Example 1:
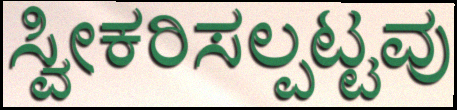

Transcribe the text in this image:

ಸ್ವೀಕರಿಸಲ್ಪಟ್ಟವು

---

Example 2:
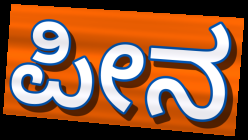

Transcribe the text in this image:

ಪೀನ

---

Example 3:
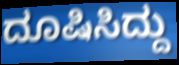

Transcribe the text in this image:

ದೂಷಿಸಿದ್ದು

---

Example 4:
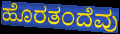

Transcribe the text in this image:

ಹೊರತಂದೆವು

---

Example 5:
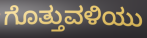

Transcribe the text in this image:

ಗೊತ್ತುವಳಿಯು